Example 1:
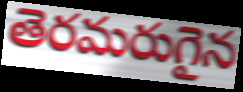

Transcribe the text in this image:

తెరమరుగైన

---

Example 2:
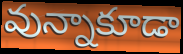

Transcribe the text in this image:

వున్నాకూడా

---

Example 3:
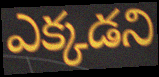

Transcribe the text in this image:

ఎక్కడని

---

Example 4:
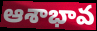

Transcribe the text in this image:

ఆశాభావ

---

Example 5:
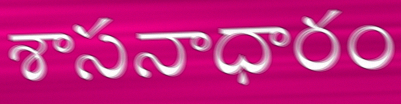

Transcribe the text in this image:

శాసనాధారం